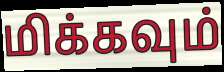
மிக்கவும்